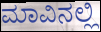
ಮಾವಿನಲ್ಲಿ